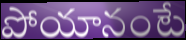
పోయానంటే